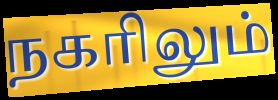
நகரிலும்